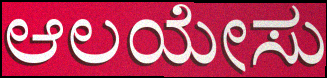
ಆಲಯೇಸು